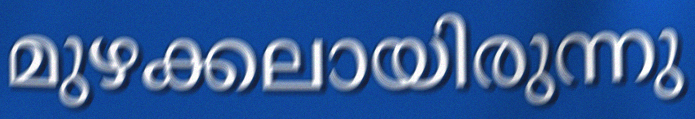
മുഴക്കലായിരുന്നു